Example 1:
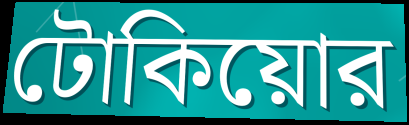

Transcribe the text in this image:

টোকিয়োর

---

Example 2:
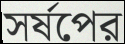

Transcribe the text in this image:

সর্ষপের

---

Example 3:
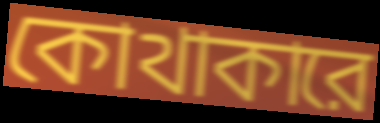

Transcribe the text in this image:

কোথাকারে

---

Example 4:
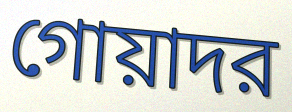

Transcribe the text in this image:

গোয়াদর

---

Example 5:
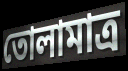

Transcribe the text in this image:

তোলামাত্র